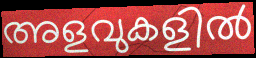
അളവുകളിൽ